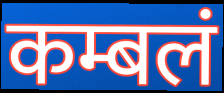
कम्बलं